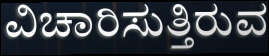
ವಿಚಾರಿಸುತ್ತಿರುವ